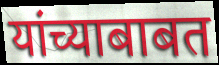
यांच्याबाबत